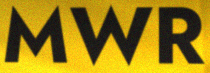
MWR